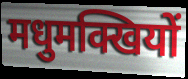
मधुमक्खियों